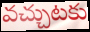
వచ్చుటకు